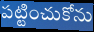
పట్టించుకోను